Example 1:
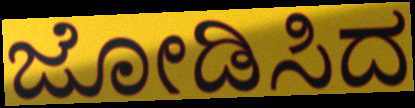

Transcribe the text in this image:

ಜೋಡಿಸಿದ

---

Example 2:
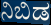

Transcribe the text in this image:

ನಿಬಿಡ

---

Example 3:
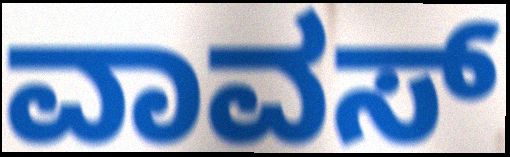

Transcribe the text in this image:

ವಾವಸ್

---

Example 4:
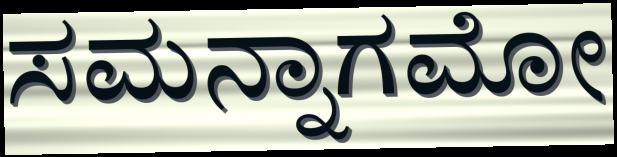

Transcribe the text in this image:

ಸಮನ್ನಾಗಮೋ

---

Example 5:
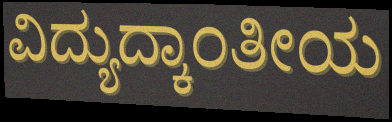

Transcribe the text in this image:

ವಿದ್ಯುದ್ಕಾಂತೀಯ